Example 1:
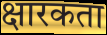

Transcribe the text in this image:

क्षारकता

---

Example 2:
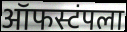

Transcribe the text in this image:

ऑफस्टंपला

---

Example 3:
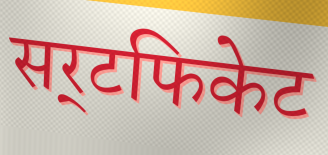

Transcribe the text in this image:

सर्टफिकेट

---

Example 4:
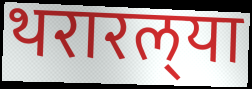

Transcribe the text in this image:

थरारल्या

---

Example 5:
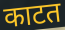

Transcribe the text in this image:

काटत